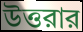
উত্তরার